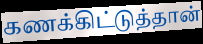
கணக்கிட்டுத்தான்